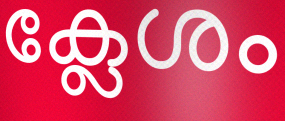
ക്ലേശം